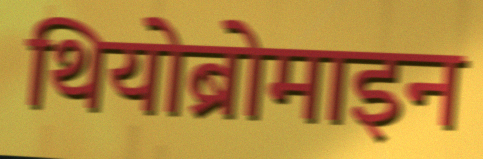
थियोब्रोमाइन